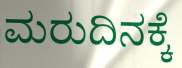
ಮರುದಿನಕ್ಕೆ